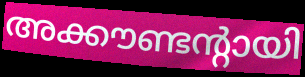
അക്കൗണ്ടന്റായി